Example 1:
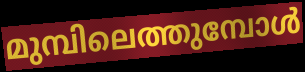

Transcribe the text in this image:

മുമ്പിലെത്തുമ്പോൾ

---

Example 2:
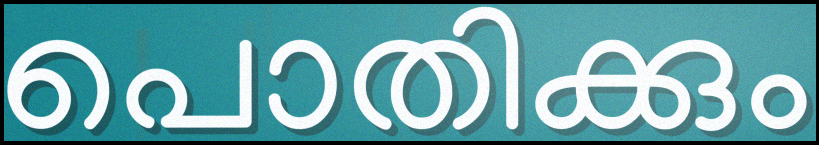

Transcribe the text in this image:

പൊതിക്കും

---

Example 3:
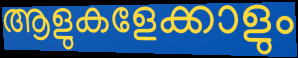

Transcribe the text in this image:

ആളുകളേക്കാളും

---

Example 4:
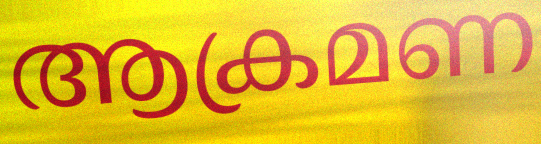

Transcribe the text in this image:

ആക്രമണ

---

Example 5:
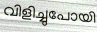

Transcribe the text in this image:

വിളിച്ചുപോയി